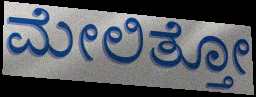
ಮೇಲಿತ್ತೋ